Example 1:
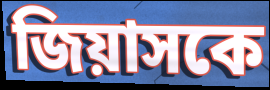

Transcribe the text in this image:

জিয়াসকে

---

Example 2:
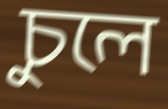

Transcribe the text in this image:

চুলে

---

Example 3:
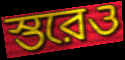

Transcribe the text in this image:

স্তরেও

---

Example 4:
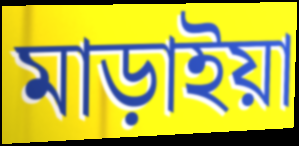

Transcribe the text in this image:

মাড়াইয়া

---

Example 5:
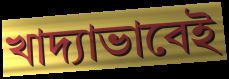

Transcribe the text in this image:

খাদ্যাভাবেই